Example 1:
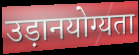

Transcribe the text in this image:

उड़ानयोग्यता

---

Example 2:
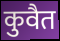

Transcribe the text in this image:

कुवैत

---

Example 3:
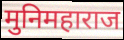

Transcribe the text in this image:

मुनिमहाराज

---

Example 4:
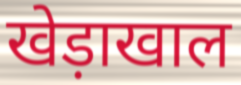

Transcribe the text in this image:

खेड़ाखाल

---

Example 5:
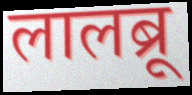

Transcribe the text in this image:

लालब्रू